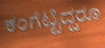
ಕಂಗೆಟ್ಟಿದ್ದರೂ